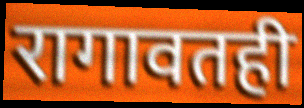
रागावतही